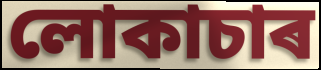
লোকাচাৰ